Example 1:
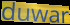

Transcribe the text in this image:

duwar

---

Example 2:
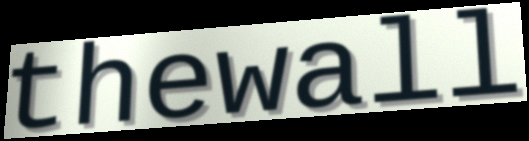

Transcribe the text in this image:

thewall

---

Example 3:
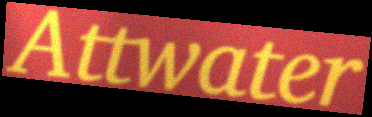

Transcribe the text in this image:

Attwater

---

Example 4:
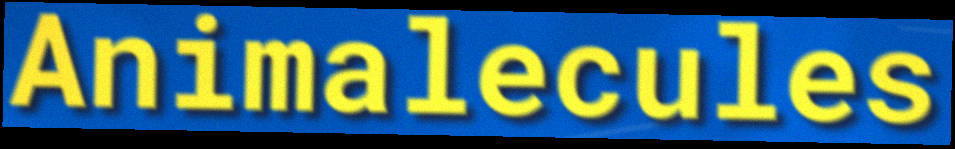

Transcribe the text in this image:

Animalecules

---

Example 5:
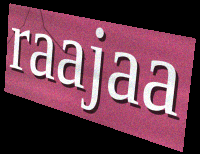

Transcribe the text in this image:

raajaa